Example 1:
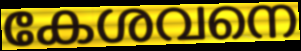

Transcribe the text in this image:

കേശവനെ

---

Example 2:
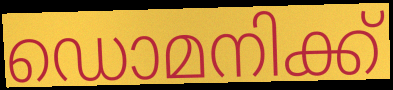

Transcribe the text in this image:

ഡൊമനിക്ക്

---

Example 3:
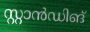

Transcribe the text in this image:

സ്റ്റാൻഡിങ്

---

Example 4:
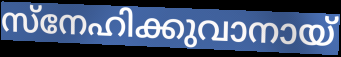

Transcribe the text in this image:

സ്നേഹിക്കുവാനായ്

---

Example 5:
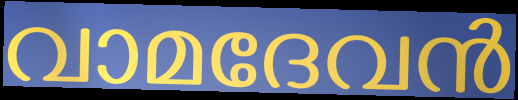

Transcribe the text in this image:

വാമദേവൻ